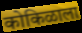
कोकिळाला